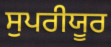
ਸੁਪਰੀਯੂਰ